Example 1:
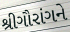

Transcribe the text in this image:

શ્રીગૌરાંગને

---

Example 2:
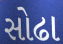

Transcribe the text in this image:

સોઢા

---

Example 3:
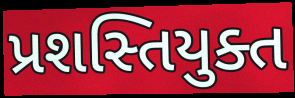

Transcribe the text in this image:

પ્રશસ્તિયુક્ત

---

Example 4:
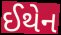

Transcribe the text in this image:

ઈથેન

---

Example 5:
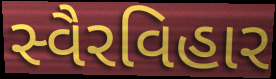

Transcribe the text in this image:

સ્વૈરવિહાર